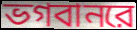
ভগবানরে